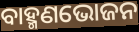
ବାହ୍ମଣଭୋଜନ